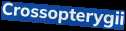
Crossopterygii